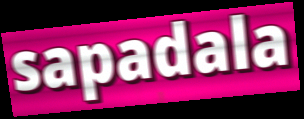
sapadala